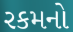
રકમનો